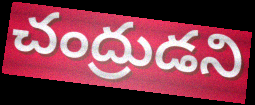
చంద్రుడని